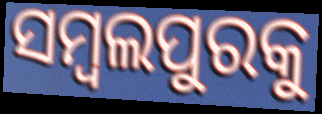
ସମ୍ୱଲପୁରକୁ